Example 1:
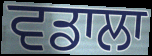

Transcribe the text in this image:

ਵਡਾਲਾ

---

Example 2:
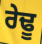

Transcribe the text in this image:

ਰੇਢੂ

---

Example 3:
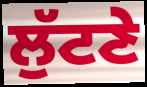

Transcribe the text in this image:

ਲੁੱਟਣੇ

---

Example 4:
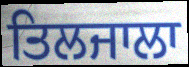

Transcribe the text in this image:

ਤਿਲਜਾਲਾ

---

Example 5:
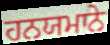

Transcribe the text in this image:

ਹਨਯਮਾਨੇ